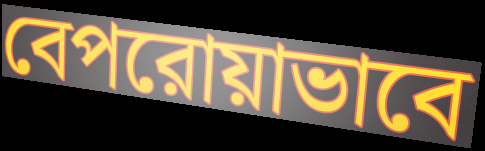
বেপরোয়াভাবে